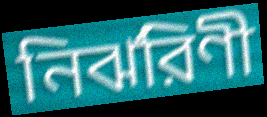
নির্ঝরিণী